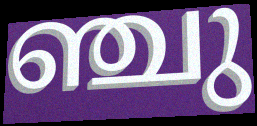
ഞ്ചു